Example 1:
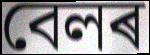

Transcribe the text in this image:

বেলৰ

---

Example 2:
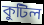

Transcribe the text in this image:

কুটিল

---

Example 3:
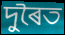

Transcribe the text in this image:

দুৰৈত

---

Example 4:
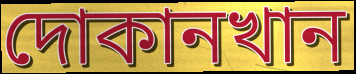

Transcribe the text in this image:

দোকানখান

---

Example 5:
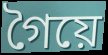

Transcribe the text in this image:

গৈয়ে